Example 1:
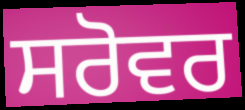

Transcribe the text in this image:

ਸਰੋਵਰ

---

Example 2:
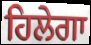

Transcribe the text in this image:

ਹਿਲੇਗਾ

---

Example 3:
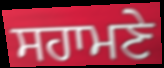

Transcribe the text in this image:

ਸਹਾਮਣੇ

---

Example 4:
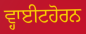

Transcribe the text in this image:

ਵ੍ਹਾਈਟਹੋਰਨ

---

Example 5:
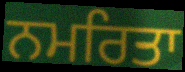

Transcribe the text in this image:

ਨਮਰਿਤਾ